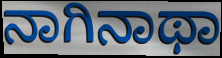
ನಾಗಿನಾಥಾ